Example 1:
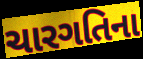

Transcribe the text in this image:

ચારગતિના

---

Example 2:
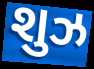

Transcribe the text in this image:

શુઝ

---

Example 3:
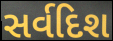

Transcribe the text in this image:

સર્વદિશ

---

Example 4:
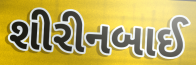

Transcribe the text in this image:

શીરીનબાઈ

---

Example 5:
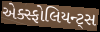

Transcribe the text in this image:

એક્સ્ફોલિયન્ટ્સ